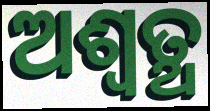
ଅଶ୍ବତ୍ଥ